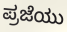
ಪ್ರಜೆಯು